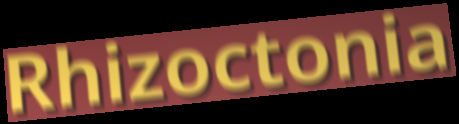
Rhizoctonia